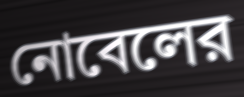
নোবেলের